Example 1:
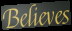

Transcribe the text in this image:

Believes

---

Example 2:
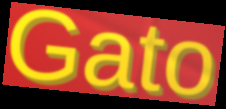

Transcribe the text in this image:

Gato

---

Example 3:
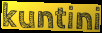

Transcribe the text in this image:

kuntini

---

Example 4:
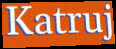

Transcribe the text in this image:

Katruj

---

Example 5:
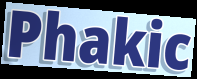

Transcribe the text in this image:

Phakic